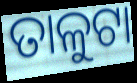
ତାଳୁଟା